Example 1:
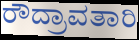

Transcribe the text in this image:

ರೌದ್ರಾವತಾರಿ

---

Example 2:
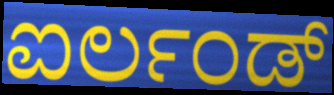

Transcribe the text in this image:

ಐರ್ಲಂಡ್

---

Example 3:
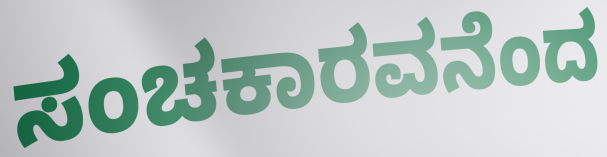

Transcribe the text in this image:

ಸಂಚಕಾರವನೆಂದ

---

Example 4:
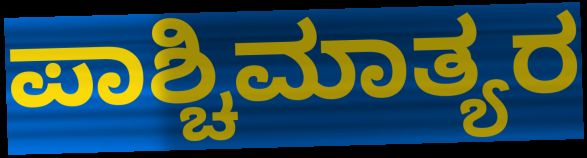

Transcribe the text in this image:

ಪಾಶ್ಚಿಮಾತ್ಯರ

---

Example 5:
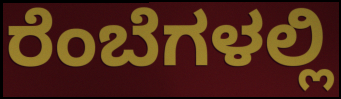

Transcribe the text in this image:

ರೆಂಬೆಗಳಲ್ಲಿ